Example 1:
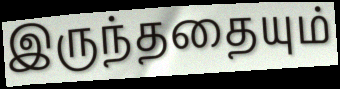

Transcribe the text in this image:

இருந்ததையும்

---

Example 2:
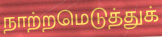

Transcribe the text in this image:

நாற்றமெடுத்துக்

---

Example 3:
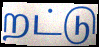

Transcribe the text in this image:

றட்டு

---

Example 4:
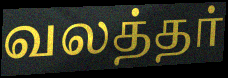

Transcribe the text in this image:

வலத்தர்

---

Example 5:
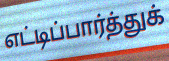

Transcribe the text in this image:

எட்டிப்பார்த்துக்